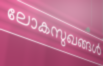
ലോകസുഖങ്ങൾ